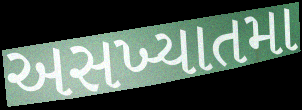
અસખ્યાતમા